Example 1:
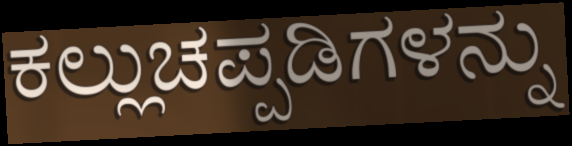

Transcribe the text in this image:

ಕಲ್ಲುಚಪ್ಪಡಿಗಳನ್ನು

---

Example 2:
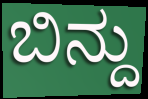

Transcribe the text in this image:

ಬಿನ್ದು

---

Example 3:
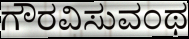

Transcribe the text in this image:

ಗೌರವಿಸುವಂಥ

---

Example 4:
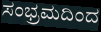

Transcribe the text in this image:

ಸಂಭ್ರಮದಿಂದ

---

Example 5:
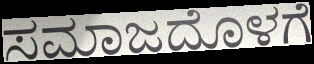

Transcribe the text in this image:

ಸಮಾಜದೊಳಗೆ